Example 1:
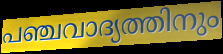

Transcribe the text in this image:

പഞ്ചവാദ്യത്തിനും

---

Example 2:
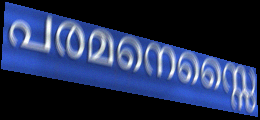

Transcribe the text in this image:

പരമനെസ്സൈ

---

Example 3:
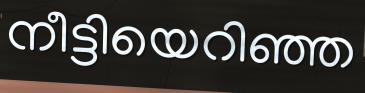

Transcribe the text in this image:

നീട്ടിയെറിഞ്ഞ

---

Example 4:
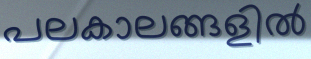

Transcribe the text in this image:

പലകാലങ്ങളിൽ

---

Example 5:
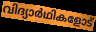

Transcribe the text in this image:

വിദ്യാർഥികളോട്